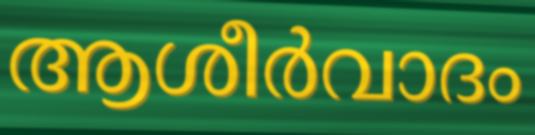
ആശീർവാദം